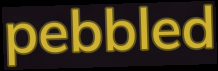
pebbled